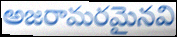
అజరామరమైనవి